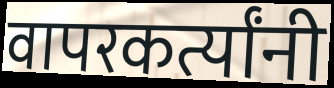
वापरकर्त्यांनी